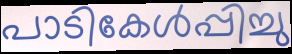
പാടികേൾപ്പിച്ചു